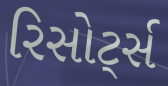
રિસોર્ટ્સ